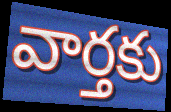
వార్తకు